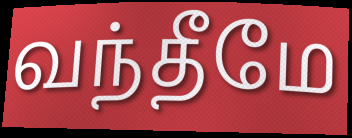
வந்தீமே